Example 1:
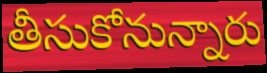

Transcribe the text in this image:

తీసుకోనున్నారు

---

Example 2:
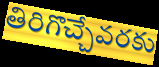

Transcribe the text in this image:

తిరిగొచ్చేవరకు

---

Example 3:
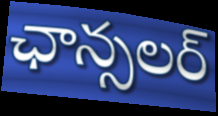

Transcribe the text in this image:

ఛాన్సలర్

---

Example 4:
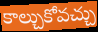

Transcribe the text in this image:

కాల్చుకోవచ్చు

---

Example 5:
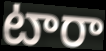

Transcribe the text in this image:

టారా